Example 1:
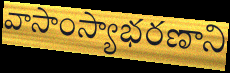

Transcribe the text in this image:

వాసాంస్యాభరణాని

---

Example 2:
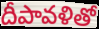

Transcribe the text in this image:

దీపావళితో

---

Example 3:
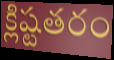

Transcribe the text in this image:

క్లిష్టతరం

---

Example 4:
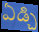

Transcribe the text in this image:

ఏడ్చి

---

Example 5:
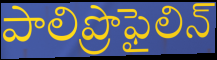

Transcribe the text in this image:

పాలిప్రొఫైలిన్